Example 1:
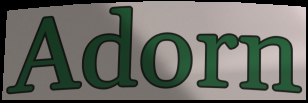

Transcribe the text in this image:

Adorn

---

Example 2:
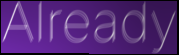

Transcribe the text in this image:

Already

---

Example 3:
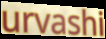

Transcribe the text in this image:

urvashi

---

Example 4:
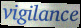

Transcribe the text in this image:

vigilance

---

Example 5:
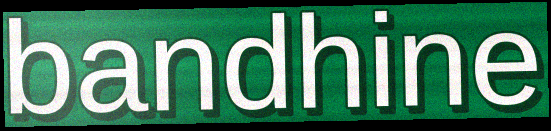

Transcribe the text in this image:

bandhine